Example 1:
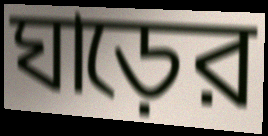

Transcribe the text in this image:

ঘাড়ের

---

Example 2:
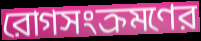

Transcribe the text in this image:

রোগসংক্রমণের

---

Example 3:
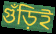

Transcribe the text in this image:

গুঁড়িই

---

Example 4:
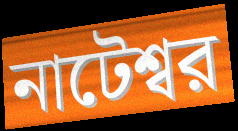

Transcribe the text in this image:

নাটেশ্বর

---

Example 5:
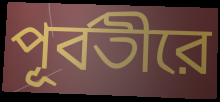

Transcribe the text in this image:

পূর্বতীরে